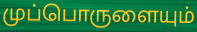
முப்பொருளையும்